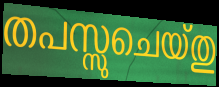
തപസ്സുചെയ്തു